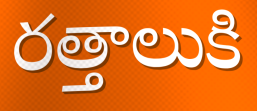
రత్తాలుకి